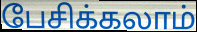
பேசிக்கலாம்